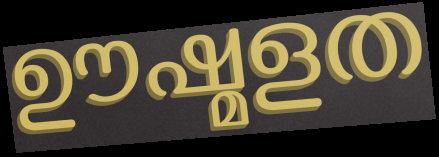
ഊഷ്മളത